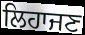
ਲਿਹਾਜਣ